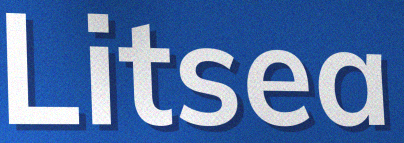
Litsea